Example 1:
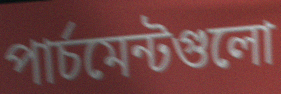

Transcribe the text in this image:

পার্চমেন্টগুলো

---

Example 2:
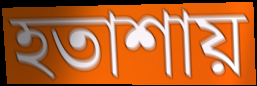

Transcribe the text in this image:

হতাশায়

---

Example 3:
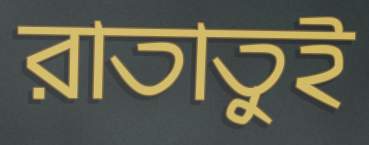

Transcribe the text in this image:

রাতাতুই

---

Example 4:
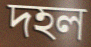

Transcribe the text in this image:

দহল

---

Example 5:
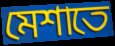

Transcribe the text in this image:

মেশাতে